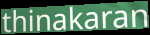
thinakaran